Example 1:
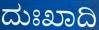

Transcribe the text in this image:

ದುಃಖಾದಿ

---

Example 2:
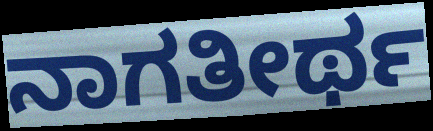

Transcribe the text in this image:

ನಾಗತೀರ್ಥ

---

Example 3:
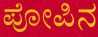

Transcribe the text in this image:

ಪೋಪಿನ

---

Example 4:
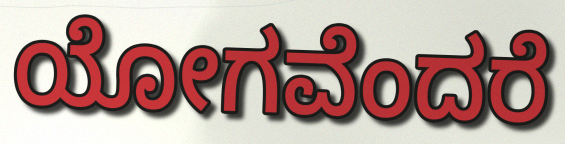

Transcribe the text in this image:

ಯೋಗವೆಂದರೆ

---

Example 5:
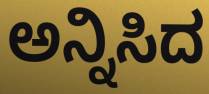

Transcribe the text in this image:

ಅನ್ನಿಸಿದ